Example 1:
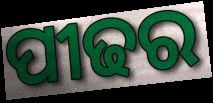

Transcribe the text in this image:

ପୀଢର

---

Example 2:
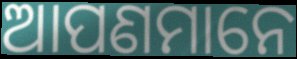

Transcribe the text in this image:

ଆପଣମାନେ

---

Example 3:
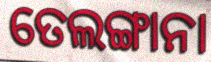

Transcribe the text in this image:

ତେଲଙ୍ଗାନା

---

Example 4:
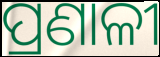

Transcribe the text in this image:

ପ୍ରଣାଳୀ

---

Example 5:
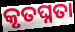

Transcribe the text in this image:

କୃତଘ୍ନତା